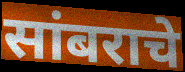
सांबराचे